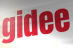
gidee